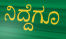
ನಿದ್ದೆಗೂ